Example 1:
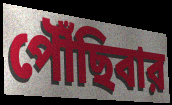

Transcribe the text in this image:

পৌঁছিবার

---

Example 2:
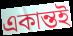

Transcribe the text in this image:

একান্তই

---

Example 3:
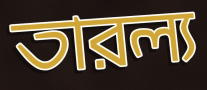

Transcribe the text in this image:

তারল্য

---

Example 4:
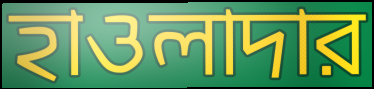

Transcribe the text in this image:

হাওলাদার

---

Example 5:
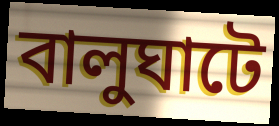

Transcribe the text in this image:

বালুঘাটে